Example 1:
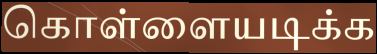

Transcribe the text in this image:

கொள்ளையடிக்க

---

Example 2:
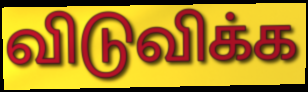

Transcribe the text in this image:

விடுவிக்க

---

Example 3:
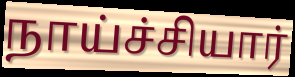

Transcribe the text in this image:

நாய்ச்சியார்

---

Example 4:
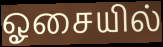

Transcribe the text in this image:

ஓசையில்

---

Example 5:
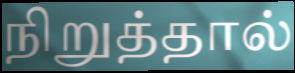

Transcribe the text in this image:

நிறுத்தால்